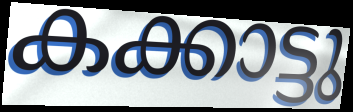
കക്കാട്ടു